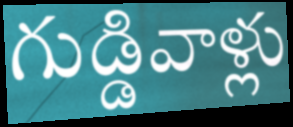
గుడ్డివాళ్లు